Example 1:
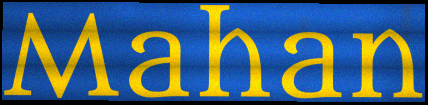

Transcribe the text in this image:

Mahan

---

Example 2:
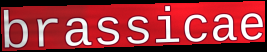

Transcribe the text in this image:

brassicae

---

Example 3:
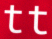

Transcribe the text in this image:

tt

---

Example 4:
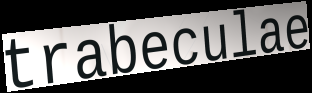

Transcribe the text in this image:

trabeculae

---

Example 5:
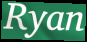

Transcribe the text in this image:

Ryan